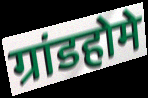
ग्रांडहोमे